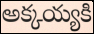
అక్కయ్యకి